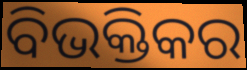
ବିଭକ୍ତିକର